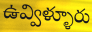
ఉవ్విళ్ళూరు